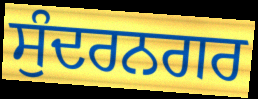
ਸੁੰਦਰਨਗਰ